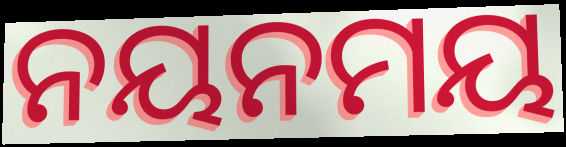
ନୟନମୟ